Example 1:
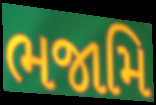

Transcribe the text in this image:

ભજામિ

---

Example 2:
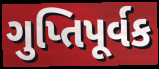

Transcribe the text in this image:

ગુપ્તિપૂર્વક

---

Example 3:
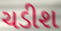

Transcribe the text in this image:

ચડીશ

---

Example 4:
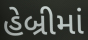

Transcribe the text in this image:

હેબ્રીમાં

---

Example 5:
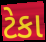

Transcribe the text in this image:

ટેકા